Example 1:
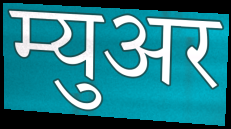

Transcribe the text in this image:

म्युअर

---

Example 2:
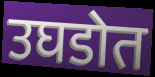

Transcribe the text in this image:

उघडोत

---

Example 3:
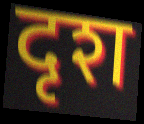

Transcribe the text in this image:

दृश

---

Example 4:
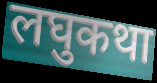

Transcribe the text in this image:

लघुकथा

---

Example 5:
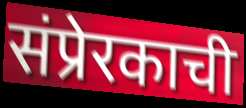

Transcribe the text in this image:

संप्रेरकाची